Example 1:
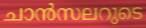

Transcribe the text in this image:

ചാൻസലറുടെ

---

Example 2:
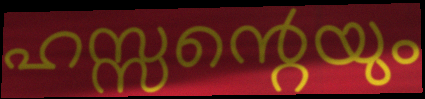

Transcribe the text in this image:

ഹസ്സന്റെയും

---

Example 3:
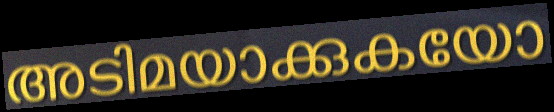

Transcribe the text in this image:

അടിമയാക്കുകയോ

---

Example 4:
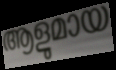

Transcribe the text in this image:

ആളുമായ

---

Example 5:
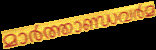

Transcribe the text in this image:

മാർത്താണ്ഡവർമ